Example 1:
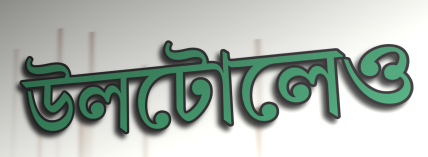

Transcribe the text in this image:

উলটোলেও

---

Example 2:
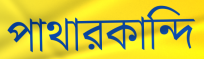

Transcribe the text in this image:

পাথারকান্দি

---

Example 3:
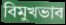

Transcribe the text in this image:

বিমুখভাব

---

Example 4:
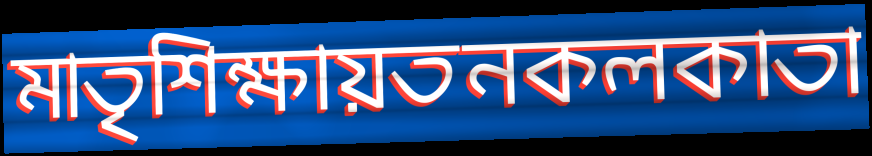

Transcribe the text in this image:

মাতৃশিক্ষায়তনকলকাতা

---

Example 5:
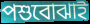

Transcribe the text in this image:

পশুবোঝাই